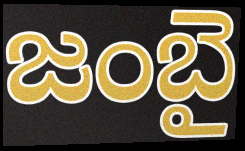
జంబై